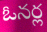
ఓనర్ల